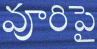
వూరిపై